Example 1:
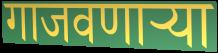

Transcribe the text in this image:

गाजवणाऱ्या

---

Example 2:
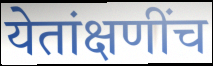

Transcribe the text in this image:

येतांक्षणींच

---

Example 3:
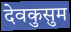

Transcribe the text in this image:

देवकुसुम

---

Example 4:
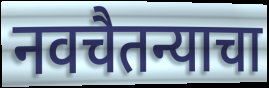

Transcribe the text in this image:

नवचैतन्याचा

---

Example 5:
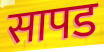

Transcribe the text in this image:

सापड